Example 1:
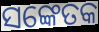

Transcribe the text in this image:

ସଙ୍କେତକ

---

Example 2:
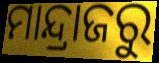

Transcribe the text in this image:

ମାନ୍ଦ୍ରାଜରୁ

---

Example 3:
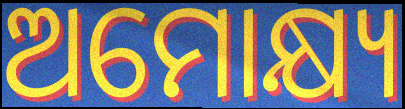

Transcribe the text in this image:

ଅମୋକ୍ଷ୍ୟ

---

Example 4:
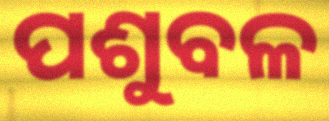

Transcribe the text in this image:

ପଶୁବଳ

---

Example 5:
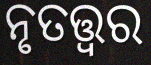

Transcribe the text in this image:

ନୃତତ୍ତ୍ୱର